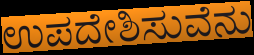
ಉಪದೇಶಿಸುವೆನು